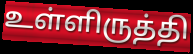
உள்ளிருத்தி